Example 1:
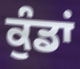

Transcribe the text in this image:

ਕੁੰਡਾਂ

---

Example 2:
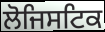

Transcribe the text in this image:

ਲੋਜਿਸਟਿਕ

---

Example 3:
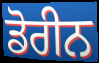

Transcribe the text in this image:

ਡੋਰੀਨ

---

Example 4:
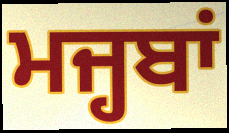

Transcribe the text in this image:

ਮਜ੍ਹਬਾਂ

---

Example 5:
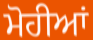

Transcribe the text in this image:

ਮੋਹੀਆਂ